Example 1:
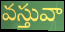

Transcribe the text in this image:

వస్తువా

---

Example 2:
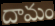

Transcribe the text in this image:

దామం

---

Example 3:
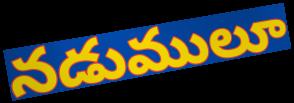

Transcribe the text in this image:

నడుములూ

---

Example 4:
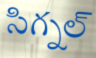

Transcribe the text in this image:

సిగ్నల్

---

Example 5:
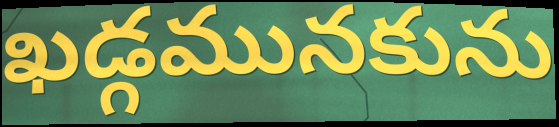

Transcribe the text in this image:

ఖడ్గమునకును